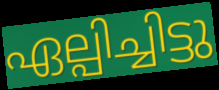
ഏല്പിച്ചിട്ടു